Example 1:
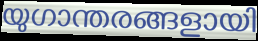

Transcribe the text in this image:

യുഗാന്തരങ്ങളായി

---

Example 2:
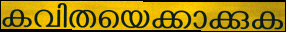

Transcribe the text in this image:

കവിതയെക്കാക്കുക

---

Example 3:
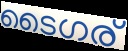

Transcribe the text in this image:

ടൈഗര്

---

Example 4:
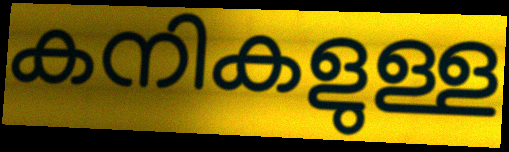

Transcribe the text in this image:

കനികളുള്ള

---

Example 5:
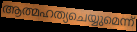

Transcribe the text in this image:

ആത്മഹത്യചെയ്യുമെന്ന്